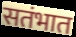
सतंभात